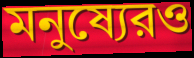
মনুষ্যেরও